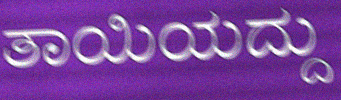
ತಾಯಿಯದ್ದು